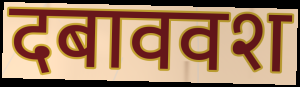
दबाववश